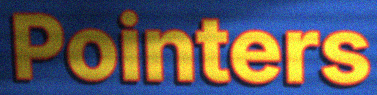
Pointers